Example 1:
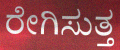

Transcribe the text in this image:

ರೇಗಿಸುತ್ತ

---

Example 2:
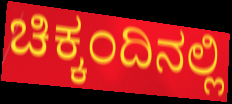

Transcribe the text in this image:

ಚಿಕ್ಕಂದಿನಲ್ಲಿ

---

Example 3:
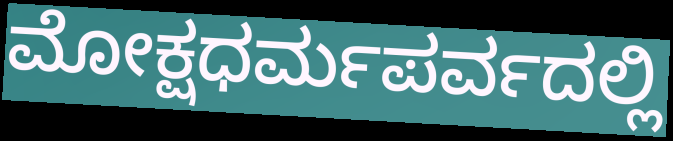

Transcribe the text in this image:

ಮೋಕ್ಷಧರ್ಮಪರ್ವದಲ್ಲಿ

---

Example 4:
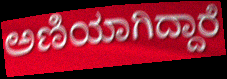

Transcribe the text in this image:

ಅಣಿಯಾಗಿದ್ದಾರೆ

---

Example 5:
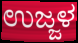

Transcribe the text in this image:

ಉಜ್ಜಳ